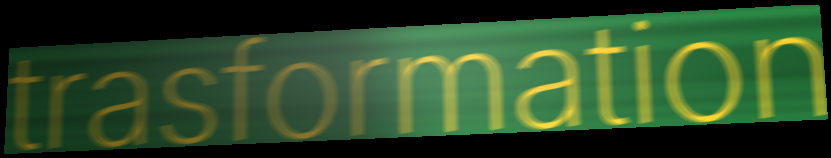
trasformation